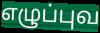
எழுப்புவ